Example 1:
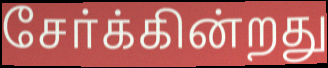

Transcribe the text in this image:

சேர்க்கின்றது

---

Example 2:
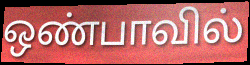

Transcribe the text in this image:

ஒண்பாவில்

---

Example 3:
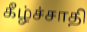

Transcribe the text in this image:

கீழ்ச்சாதி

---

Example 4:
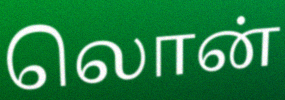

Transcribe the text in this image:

லொன்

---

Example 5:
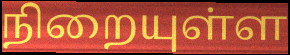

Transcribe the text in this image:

நிறையுள்ள